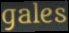
gales